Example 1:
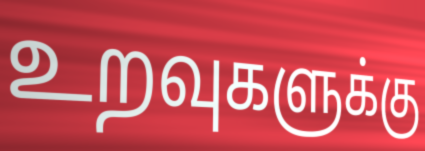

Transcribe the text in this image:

உறவுகளுக்கு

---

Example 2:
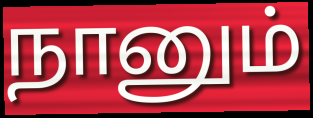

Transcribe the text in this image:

நானும்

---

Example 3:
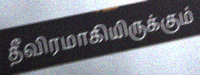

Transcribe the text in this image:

தீவிரமாகியிருக்கும்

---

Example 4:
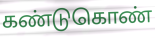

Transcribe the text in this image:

கண்டுகொண்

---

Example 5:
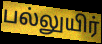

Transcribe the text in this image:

பல்லுயிர்